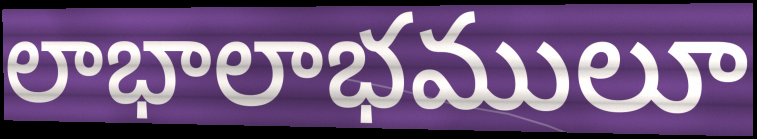
లాభాలాభములూ